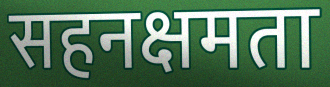
सहनक्षमता